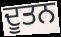
ਦੂਤਨ